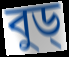
বুড্